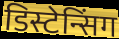
डिस्टेन्सिंग